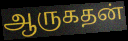
ஆருகதன்